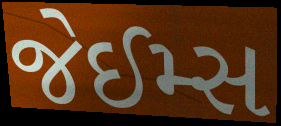
જેઈમ્સ